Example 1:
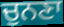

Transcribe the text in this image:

ਚੁਨਣਾ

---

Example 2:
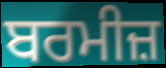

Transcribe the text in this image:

ਬਰਮੀਜ਼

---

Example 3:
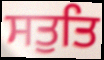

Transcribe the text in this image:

ਸਤੁਤਿ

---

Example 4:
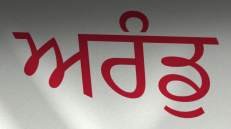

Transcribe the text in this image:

ਅਰੰਡੁ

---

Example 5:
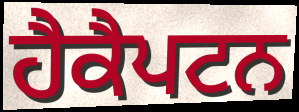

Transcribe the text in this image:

ਹੈਕੈਪਟਨ